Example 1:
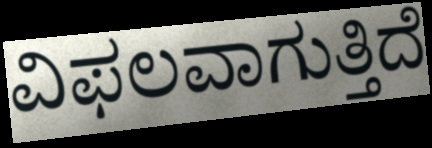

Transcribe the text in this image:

ವಿಫಲವಾಗುತ್ತಿದೆ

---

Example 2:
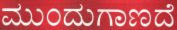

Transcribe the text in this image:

ಮುಂದುಗಾಣದೆ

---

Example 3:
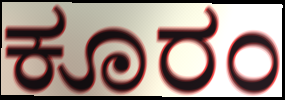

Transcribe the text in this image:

ಕೂರಂ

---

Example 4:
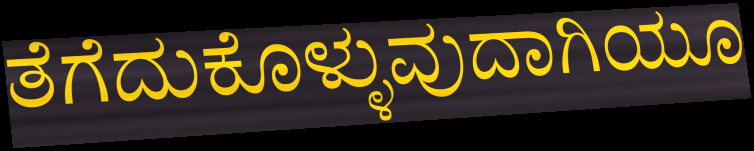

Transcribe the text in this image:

ತೆಗೆದುಕೊಳ್ಳುವುದಾಗಿಯೂ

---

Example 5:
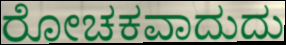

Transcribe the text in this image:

ರೋಚಕವಾದುದು